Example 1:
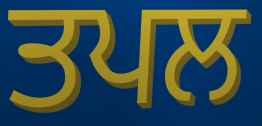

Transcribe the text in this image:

ਤਪਲ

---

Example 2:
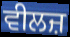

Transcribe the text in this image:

ਵੀਲਜ਼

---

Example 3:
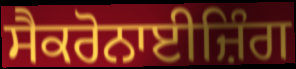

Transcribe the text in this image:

ਸੈਕਰੋਨਾਈਜ਼ਿੰਗ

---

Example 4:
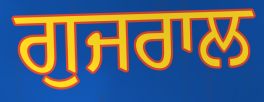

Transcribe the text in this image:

ਗੁਜਰਾਲ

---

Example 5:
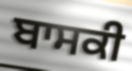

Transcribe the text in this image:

ਬਾਸਕੀ